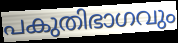
പകുതിഭാഗവും